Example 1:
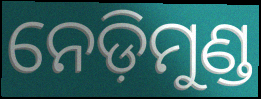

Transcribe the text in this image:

ନେଡ଼ିମୁଣ୍ଡ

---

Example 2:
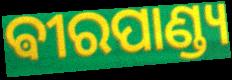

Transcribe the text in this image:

ଵୀରପାଣ୍ଡ୍ୟ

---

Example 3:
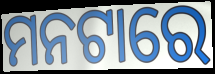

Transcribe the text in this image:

ମନଟାରେ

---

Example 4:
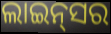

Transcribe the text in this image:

ଲାଇନ୍‍ସର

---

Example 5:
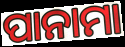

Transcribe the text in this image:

ପାନାମା